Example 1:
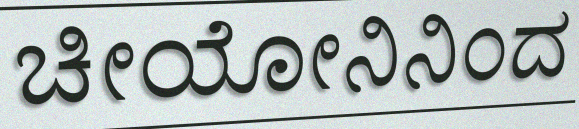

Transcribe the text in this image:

ಚೀಯೋನಿನಿಂದ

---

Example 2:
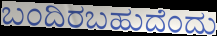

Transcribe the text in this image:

ಬಂದಿರಬಹುದೆಂದು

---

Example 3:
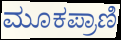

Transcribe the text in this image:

ಮೂಕಪ್ರಾಣಿ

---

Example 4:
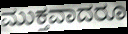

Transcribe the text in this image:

ಮುಕ್ತವಾದರೂ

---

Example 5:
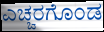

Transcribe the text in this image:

ಎಚ್ಚರಗೊಂಡ